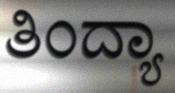
ತಿಂದ್ಯಾ